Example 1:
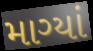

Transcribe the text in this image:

માગ્યાં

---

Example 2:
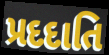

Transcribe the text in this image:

પ્રદદાતિ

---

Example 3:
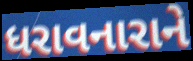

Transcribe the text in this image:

ધરાવનારાને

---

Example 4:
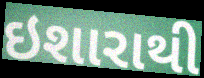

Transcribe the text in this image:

ઇશારાથી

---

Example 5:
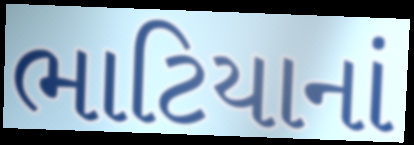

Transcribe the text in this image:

ભાટિયાનાં